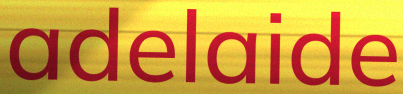
adelaide